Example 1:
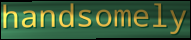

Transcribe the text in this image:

handsomely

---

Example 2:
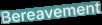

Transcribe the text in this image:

Bereavement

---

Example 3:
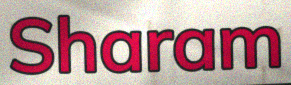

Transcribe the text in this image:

Sharam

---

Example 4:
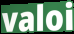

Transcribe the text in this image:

valoi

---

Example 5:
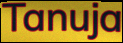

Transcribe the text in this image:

Tanuja